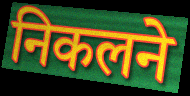
निकलने